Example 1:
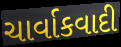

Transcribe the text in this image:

ચાર્વાકવાદી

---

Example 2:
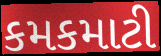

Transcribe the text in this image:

કમકમાટી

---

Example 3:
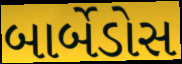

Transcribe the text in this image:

બાર્બેડોસ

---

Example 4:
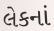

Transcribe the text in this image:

લેકનાં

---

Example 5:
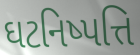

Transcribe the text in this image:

ઘટનિષ્પત્તિ